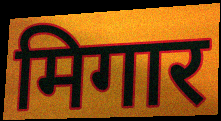
मिगार